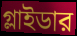
গ্লাইডার